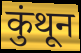
कुंथून